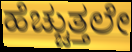
ಹೆಚ್ಚುತ್ತಲೇ